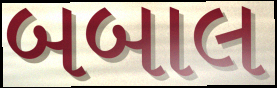
બબાલ